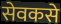
सेवकसे